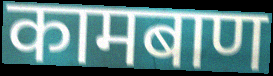
कामबाण